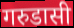
गरुडासी